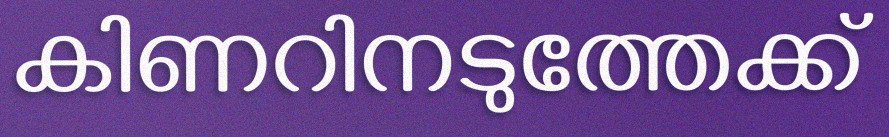
കിണറിനടുത്തേക്ക്